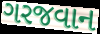
ગરજવાન